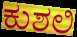
ಕುಶಲಿ